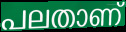
പലതാണ്